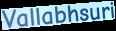
Vallabhsuri